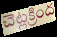
చెట్లక్రింద